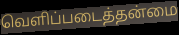
வெளிப்படைத்தன்மை